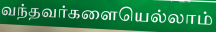
வந்தவர்களையெல்லாம்